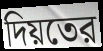
দিয়তের